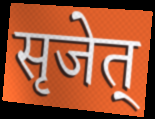
सृजेत्